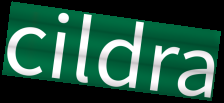
cildra